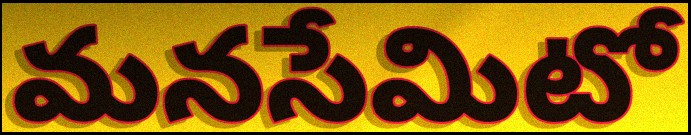
మనసేమిటో